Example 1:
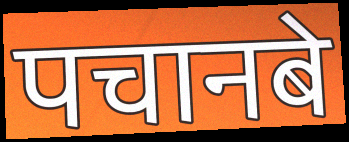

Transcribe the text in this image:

पचानबे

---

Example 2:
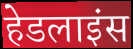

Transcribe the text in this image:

हेडलाइंस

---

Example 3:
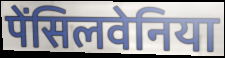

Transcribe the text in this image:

पेंसिलवेनिया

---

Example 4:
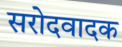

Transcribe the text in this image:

सरोदवादक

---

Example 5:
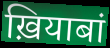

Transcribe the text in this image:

ख़ियाबां